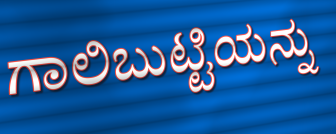
ಗಾಲಿಬುಟ್ಟಿಯನ್ನು